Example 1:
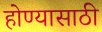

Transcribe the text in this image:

होण्यासाठी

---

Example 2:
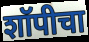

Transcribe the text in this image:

शॉपीचा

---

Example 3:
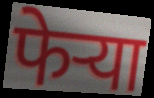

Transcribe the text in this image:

फेर्‍या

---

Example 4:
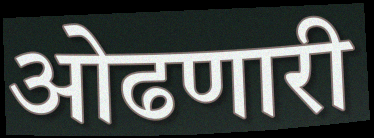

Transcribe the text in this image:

ओढणारी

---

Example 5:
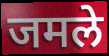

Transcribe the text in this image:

जमले